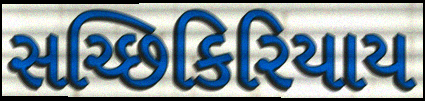
સચ્છિકિરિયાય